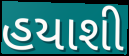
હયાશી